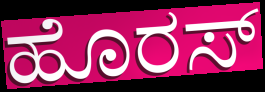
ಹೊರಸ್